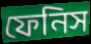
ফেনিস